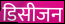
डिसीजन